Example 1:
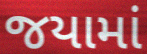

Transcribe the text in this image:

જયામાં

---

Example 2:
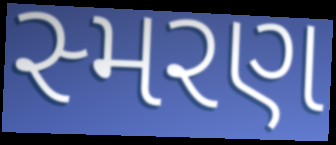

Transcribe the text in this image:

સ્મરણ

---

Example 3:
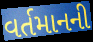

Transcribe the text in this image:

વર્તમાનની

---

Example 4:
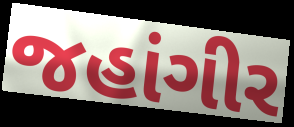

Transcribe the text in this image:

જહાંગીર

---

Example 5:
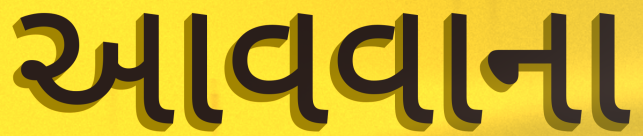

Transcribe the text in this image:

આવવાના